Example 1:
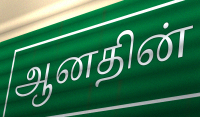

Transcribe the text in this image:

ஆனதின்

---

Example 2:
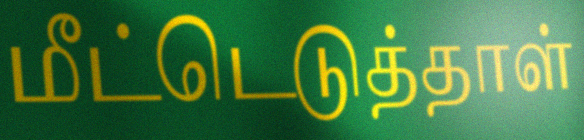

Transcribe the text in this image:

மீட்டெடுத்தாள்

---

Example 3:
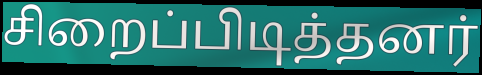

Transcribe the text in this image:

சிறைப்பிடித்தனர்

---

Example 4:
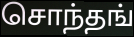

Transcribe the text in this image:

சொந்தங்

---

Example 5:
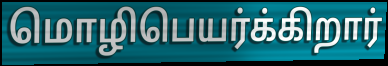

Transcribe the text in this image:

மொழிபெயர்க்கிறார்